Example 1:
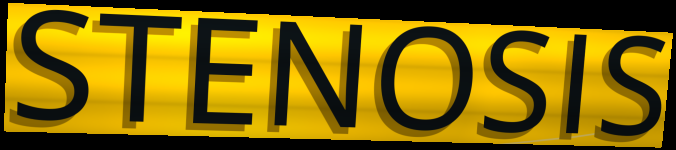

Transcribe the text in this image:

STENOSIS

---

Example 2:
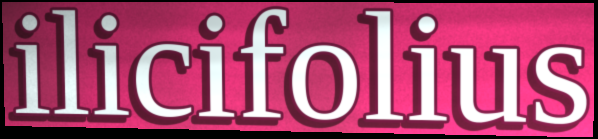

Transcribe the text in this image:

ilicifolius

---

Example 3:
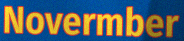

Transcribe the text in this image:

Novermber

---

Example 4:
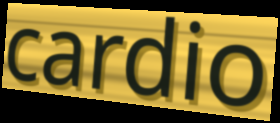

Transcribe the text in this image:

cardio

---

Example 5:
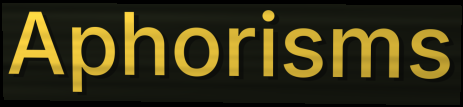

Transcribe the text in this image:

Aphorisms